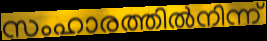
സംഹാരത്തിൽനിന്ന്